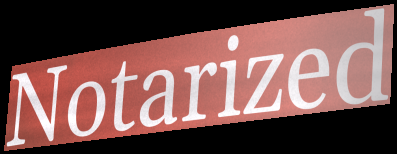
Notarized